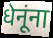
धेनूंना